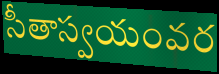
సీతాస్వయంవర